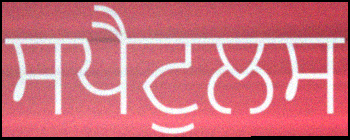
ਸਪੈਟੁਲਸ